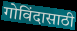
गोविंदासाठी